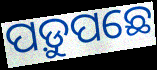
ପଡ଼ୁପଛେ